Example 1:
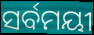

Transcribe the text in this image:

ସର୍ବମୟୀ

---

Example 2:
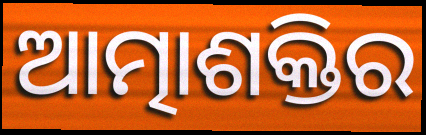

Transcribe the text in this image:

ଆତ୍ମାଶକ୍ତିର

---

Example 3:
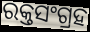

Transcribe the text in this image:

ରକ୍ତସଂଗ୍ରହ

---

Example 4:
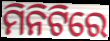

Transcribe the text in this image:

ମିନିଟିରେ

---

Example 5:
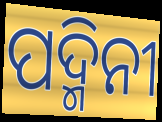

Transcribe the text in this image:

ପଦ୍ମିନୀ